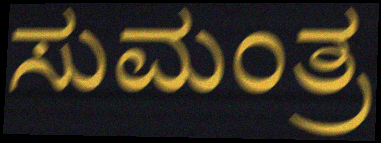
ಸುಮಂತ್ರ